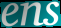
ens